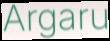
Argaru